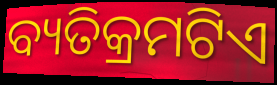
ବ୍ୟତିକ୍ରମଟିଏ